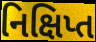
નિક્ષિપ્ત